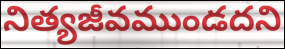
నిత్యజీవముండదని